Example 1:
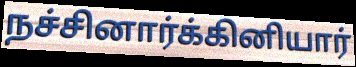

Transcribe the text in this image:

நச்சினார்க்கினியார்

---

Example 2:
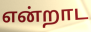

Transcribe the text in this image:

என்றாட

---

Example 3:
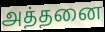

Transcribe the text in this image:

அத்தனை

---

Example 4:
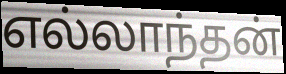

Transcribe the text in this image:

எல்லாந்தன்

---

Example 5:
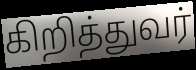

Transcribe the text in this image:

கிறித்துவர்